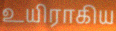
உயிராகிய